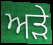
ਅੜੇ